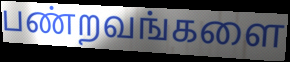
பண்றவங்களை